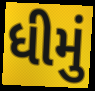
ધીમું